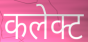
कलेक्ट